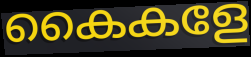
കൈകളേ